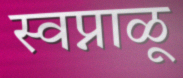
स्वप्नाळू